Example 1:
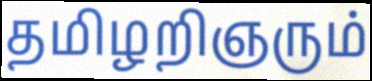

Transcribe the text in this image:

தமிழறிஞரும்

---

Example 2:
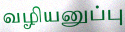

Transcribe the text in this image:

வழியனுப்பு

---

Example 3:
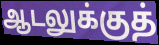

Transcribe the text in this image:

ஆடலுக்குத்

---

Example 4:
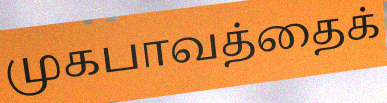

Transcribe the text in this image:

முகபாவத்தைக்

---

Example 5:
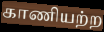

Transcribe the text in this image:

காணியற்ற